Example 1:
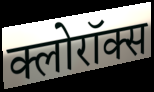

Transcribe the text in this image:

क्लोरॉक्स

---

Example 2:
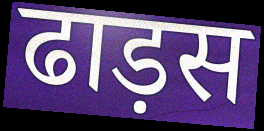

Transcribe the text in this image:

ढाड़स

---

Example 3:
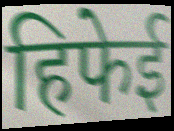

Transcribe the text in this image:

हिफेई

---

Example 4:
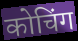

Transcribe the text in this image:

कोचिंग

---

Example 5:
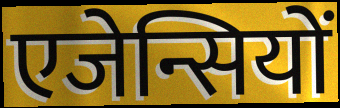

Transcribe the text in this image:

एजेन्सियों